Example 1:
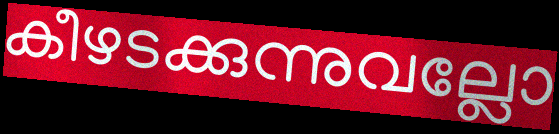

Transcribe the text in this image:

കീഴടക്കുന്നുവല്ലോ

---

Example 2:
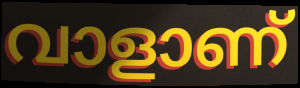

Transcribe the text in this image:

വാളാണ്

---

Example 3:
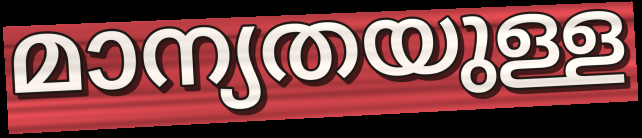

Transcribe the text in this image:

മാന്യതയുള്ള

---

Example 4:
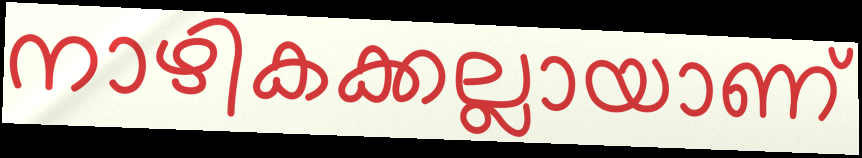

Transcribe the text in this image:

നാഴികക്കല്ലായാണ്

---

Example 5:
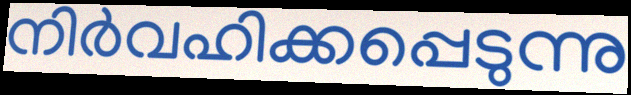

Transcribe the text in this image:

നിർവഹിക്കപ്പെടുന്നു